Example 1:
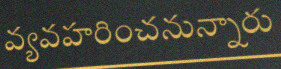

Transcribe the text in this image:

వ్యవహరించనున్నారు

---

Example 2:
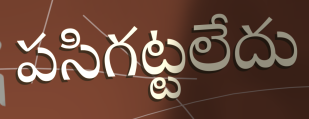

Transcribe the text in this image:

పసిగట్టలేదు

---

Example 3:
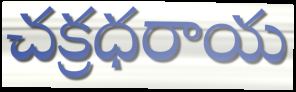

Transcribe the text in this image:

చక్రధరాయ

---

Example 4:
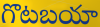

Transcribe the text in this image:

గొటబయా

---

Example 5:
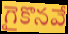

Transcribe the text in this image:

గైకొనవే